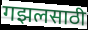
गझलसाठी